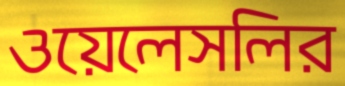
ওয়েলেসলির